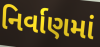
નિર્વાણમાં